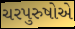
ચરપુરુષોએ